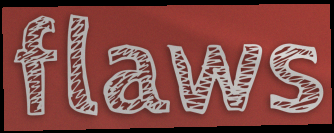
flaws